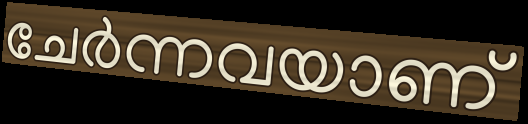
ചേർന്നവയാണ്